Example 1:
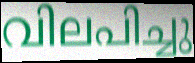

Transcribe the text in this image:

വിലപിച്ചു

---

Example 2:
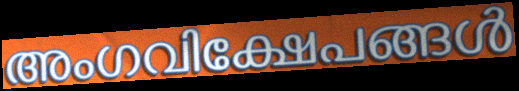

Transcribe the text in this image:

അംഗവിക്ഷേപങ്ങൾ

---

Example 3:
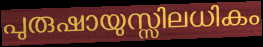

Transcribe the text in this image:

പുരുഷായുസ്സിലധികം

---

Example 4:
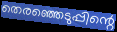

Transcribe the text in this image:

തെരഞ്ഞെടുപ്പിന്റെ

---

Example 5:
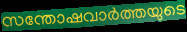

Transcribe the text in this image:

സന്തോഷവാർത്തയുടെ